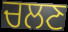
ਚਲਣ